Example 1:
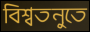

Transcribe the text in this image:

বিশ্বতনুতে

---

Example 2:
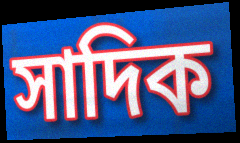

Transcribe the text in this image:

সাদিক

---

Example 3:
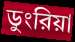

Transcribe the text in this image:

ডুংরিয়া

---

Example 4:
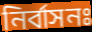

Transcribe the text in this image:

নির্বাসনঃ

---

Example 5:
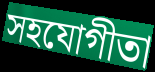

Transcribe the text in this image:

সহযোগীতা